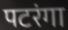
पटरंगा